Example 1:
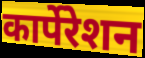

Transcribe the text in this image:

कार्पेरेशन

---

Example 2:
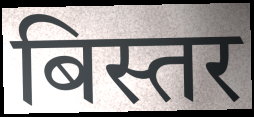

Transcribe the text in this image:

बिस्‍तर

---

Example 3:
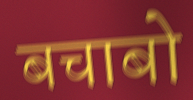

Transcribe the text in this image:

बचाबो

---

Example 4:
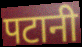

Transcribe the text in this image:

पटानी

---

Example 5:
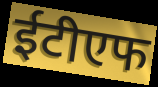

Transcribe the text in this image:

ईटीएफ